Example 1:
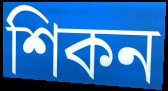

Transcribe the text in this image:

শিকন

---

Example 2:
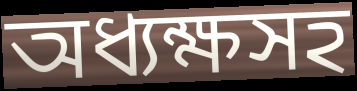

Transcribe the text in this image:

অধ্যক্ষসহ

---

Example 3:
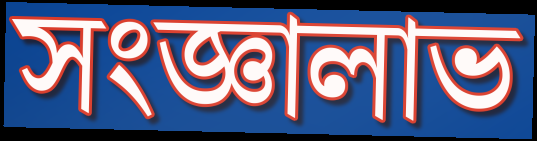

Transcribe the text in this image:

সংজ্ঞালাভ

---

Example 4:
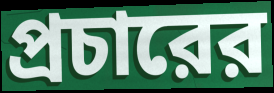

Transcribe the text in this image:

প্রচারের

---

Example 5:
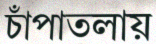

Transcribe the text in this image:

চাঁপাতলায়